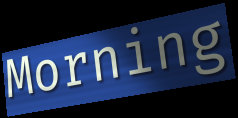
Morning